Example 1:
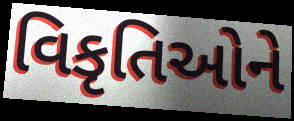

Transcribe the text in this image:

વિકૃતિઓને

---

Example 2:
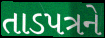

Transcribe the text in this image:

તાડપત્રને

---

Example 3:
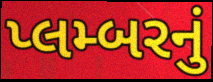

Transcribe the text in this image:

પ્લમ્બરનું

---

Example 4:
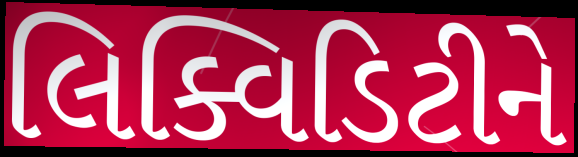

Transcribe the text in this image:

લિક્વિડિટીને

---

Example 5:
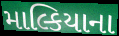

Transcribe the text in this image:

માલ્કિયાના